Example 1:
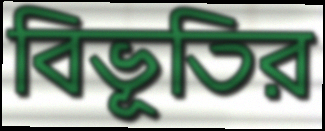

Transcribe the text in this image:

বিভূতির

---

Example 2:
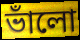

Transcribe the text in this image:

ভাঁলো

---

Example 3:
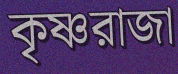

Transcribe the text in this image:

কৃষ্ণরাজা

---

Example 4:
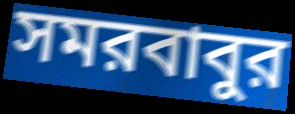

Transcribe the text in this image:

সমরবাবুর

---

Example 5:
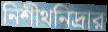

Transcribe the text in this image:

নিশীথনিদ্রার